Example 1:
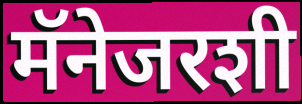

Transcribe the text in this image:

मॅनेजरशी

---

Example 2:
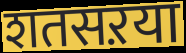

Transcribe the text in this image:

शतसऱया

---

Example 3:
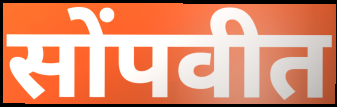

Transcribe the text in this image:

सोंपवीत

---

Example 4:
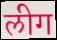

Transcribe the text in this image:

लीग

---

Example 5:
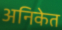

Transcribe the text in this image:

अनिकेत